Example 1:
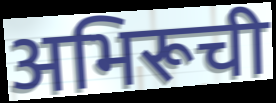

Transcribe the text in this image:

अभिरूची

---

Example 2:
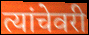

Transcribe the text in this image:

त्यांचेवरी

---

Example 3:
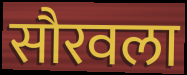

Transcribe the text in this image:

सौरवला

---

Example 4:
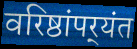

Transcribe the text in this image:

वरिष्ठांपर्यंत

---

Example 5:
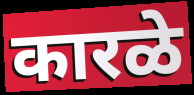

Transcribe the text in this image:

कारळे